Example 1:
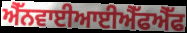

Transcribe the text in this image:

ਐੱਨਵਾਈਆਈਐੱਫਐੱਫ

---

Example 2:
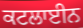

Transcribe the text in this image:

ਕਟਲਾਈਨ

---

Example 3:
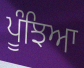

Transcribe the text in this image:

ਪੂੰਝਿਆ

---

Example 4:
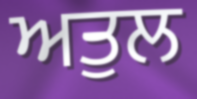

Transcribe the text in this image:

ਅਤੁਲ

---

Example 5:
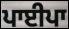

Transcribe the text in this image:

ਪਾਈਪਾ